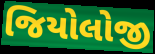
જિયોલોજી